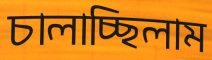
চালাচ্ছিলাম